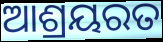
ଆଶ୍ରୟରତ